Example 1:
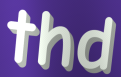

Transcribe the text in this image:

thd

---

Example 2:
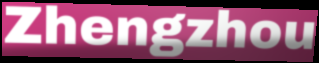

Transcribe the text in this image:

Zhengzhou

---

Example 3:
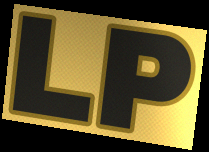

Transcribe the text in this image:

LP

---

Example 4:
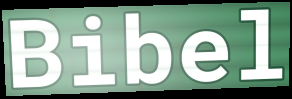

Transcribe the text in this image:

Bibel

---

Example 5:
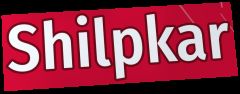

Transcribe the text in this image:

Shilpkar